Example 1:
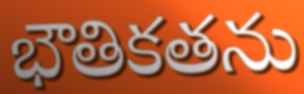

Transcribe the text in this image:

భౌతికతను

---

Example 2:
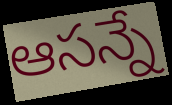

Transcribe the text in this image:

ఆసన్నే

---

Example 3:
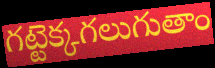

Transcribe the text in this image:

గట్టెక్కగలుగుతాం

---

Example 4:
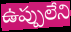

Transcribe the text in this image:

ఉప్పులేని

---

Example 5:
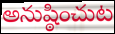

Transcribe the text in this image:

అనుష్ఠించుట